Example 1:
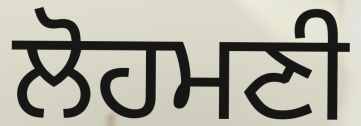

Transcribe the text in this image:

ਲੋਹਮਣੀ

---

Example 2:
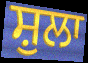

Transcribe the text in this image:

ਸ਼ੁਲਾ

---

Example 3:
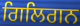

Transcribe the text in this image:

ਗਿਲਿਗਨ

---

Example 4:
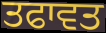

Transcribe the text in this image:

ਤਫਾਵਤ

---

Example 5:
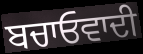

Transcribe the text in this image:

ਬਚਾਓਵਾਦੀ